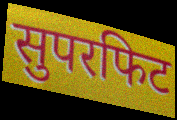
सुपरफिट